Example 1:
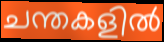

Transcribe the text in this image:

ചന്തകളിൽ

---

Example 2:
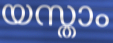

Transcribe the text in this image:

യസ്താം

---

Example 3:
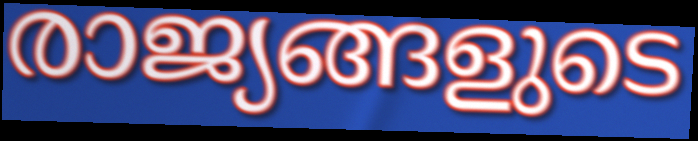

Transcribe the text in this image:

രാജ്യങ്ങളുടെ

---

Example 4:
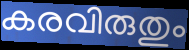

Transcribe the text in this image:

കരവിരുതും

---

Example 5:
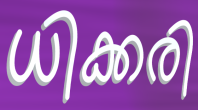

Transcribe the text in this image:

ധിക്കരി